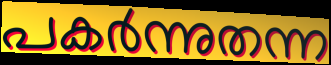
പകർന്നുതന്ന